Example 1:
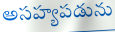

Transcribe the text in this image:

అసహ్యపడును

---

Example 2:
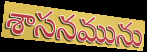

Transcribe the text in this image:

శాసనమును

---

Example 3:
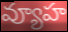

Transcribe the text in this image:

వ్యూహ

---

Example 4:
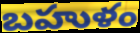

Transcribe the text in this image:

బహుళం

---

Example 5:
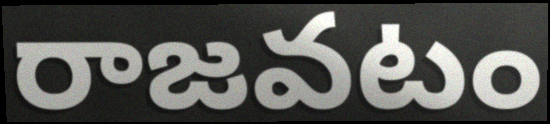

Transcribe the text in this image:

రాజవటం